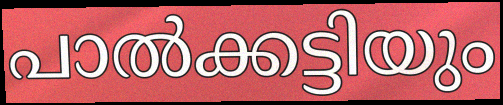
പാൽക്കട്ടിയും